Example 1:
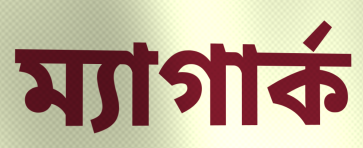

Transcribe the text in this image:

ম্যাগার্ক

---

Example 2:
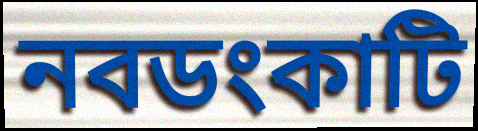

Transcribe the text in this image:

নবডংকাটি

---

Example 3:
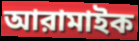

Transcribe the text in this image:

আরামাইক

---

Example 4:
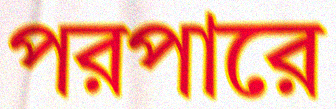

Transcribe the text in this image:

পরপারে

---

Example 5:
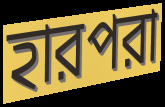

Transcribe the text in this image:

হারপরা